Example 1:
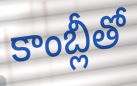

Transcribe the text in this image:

కాంబ్లీతో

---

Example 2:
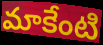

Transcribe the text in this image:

మాకేంటి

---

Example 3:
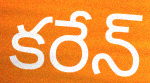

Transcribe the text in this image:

కరేన్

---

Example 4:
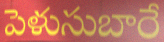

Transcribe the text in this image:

పెళుసుబారే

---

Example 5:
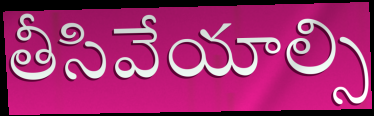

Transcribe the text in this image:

తీసివేయాల్సి